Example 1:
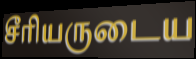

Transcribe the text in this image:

சீரியருடைய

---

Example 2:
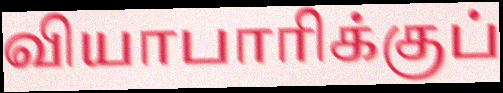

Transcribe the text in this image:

வியாபாரிக்குப்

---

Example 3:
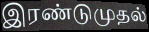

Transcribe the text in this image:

இரண்டுமுதல்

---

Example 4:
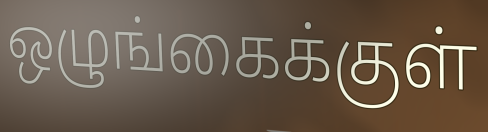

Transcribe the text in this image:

ஒழுங்கைக்குள்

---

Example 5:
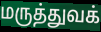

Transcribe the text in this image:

மருத்துவக்